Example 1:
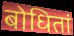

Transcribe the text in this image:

बोधितां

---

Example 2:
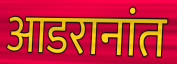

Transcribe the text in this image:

आडरानांत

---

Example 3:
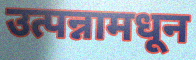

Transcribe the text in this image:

उत्पन्नामधून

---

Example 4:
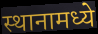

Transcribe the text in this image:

स्थानामध्ये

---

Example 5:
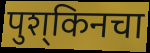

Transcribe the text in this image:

पुश्किनचा